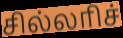
சில்லரிச்